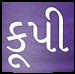
કૂપી